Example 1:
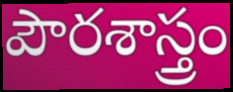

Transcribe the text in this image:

పౌరశాస్త్రం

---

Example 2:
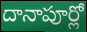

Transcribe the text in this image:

దానాపూర్లో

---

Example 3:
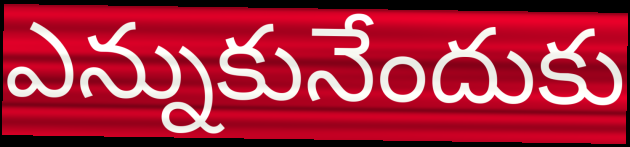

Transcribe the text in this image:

ఎన్నుకునేందుకు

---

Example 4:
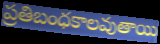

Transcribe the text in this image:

ప్రతిబంధకాలవుతాయి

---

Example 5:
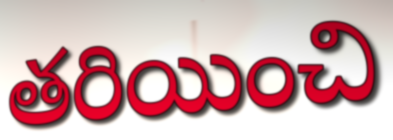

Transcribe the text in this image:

తరియించి